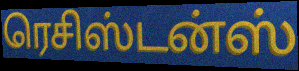
ரெசிஸ்டன்ஸ்